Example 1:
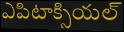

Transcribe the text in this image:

ఎపిటాక్సియల్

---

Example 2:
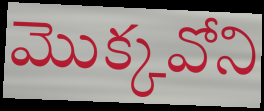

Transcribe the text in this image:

మొక్కవోని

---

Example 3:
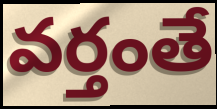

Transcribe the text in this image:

వర్తంతే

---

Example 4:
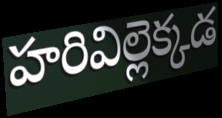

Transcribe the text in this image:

హరివిల్లెక్కడ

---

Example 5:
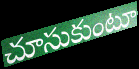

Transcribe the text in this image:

చూసుకుంటూ